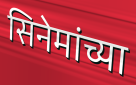
सिनेमांच्या